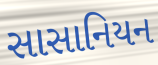
સાસાનિયન